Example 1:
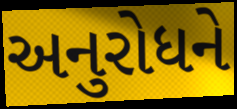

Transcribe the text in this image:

અનુરોધને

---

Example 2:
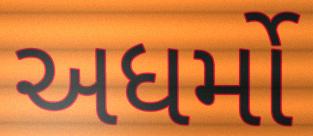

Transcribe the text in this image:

અધર્મો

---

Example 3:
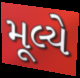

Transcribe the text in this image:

મૂલ્યે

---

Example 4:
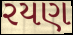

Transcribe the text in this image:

રયણ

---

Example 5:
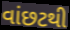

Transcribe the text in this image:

વાંછટથી